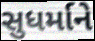
સુધર્માને